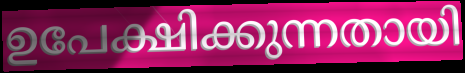
ഉപേക്ഷിക്കുന്നതായി